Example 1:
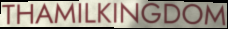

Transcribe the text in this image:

THAMILKINGDOM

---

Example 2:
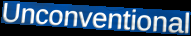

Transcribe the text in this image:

Unconventional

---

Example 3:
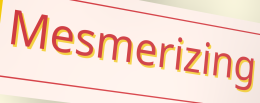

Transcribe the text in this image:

Mesmerizing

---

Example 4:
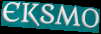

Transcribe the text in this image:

EKSMO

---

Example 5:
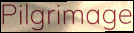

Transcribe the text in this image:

Pilgrimage